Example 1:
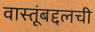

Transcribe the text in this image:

वास्तूंबद्दलची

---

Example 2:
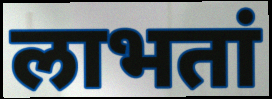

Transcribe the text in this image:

लाभतां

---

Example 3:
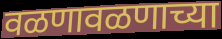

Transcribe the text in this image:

वळणावळणाच्या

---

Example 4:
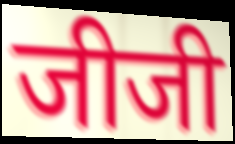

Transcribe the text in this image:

जीजी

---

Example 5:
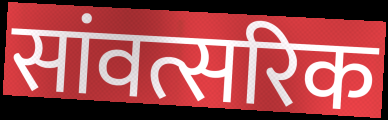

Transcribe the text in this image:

सांवत्सरिक